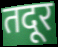
तदूर